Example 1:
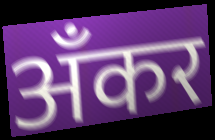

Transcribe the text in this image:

अँकर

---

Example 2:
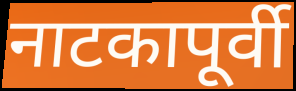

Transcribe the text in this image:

नाटकापूर्वी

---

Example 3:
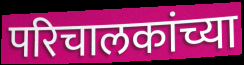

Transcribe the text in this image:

परिचालकांच्या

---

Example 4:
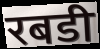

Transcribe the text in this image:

रबडी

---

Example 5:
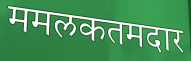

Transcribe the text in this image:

ममलकतमदार